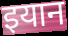
इयान